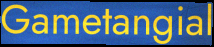
Gametangial